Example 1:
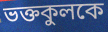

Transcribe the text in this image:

ভক্তকুলকে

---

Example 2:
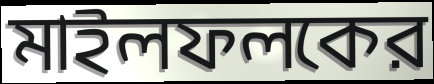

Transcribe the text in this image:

মাইলফলকের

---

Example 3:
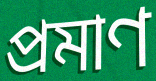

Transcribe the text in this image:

প্রমাণ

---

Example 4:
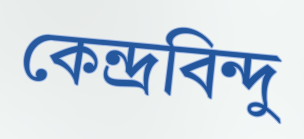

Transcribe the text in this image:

কেন্দ্রবিন্দু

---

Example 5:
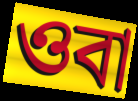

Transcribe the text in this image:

ওবা